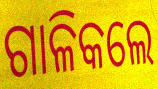
ଗାଳିକଲେ